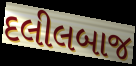
દલીલબાજ